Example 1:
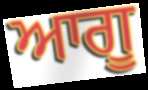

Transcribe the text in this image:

ਆਗੂ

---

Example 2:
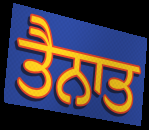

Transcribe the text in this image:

ਤੈਨਾਤ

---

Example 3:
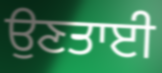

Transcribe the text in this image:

ਉਣਤਾਈ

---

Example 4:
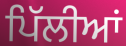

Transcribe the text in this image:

ਪਿੱਲੀਆਂ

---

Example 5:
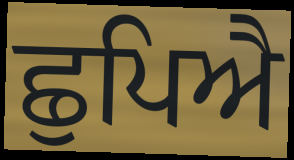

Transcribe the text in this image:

ਛੁਪਿਐ